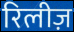
रिलीज़